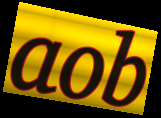
aob